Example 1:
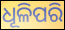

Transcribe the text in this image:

ଧୂଳିପରି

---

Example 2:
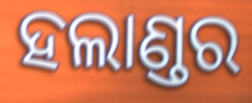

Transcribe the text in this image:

ହଲାଣ୍ଡର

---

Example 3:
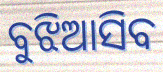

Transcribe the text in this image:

ବୁଝିଆସିବ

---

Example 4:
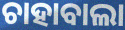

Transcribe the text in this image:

ଚାହାବାଲା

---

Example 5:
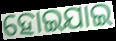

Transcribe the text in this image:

ହୋଇଯାଇ